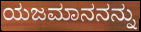
ಯಜಮಾನನನ್ನು